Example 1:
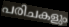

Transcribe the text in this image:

പരിചകളും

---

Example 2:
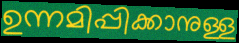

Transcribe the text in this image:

ഉന്നമിപ്പിക്കാനുള്ള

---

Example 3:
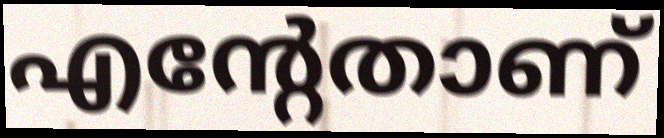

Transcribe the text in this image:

എന്റേതാണ്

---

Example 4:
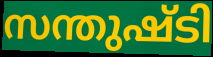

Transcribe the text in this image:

സന്തുഷ്ടി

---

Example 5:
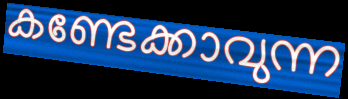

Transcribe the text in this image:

കണ്ടേക്കാവുന്ന